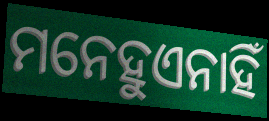
ମନେହୁଏନାହିଁ